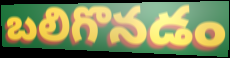
బలిగొనడం